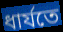
ধার্যতে